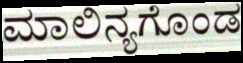
ಮಾಲಿನ್ಯಗೊಂಡ